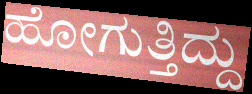
ಹೋಗುತ್ತಿದ್ದು